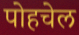
पोहचेल